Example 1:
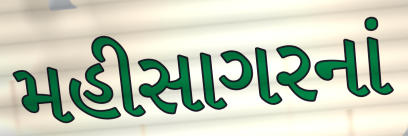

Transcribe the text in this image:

મહીસાગરનાં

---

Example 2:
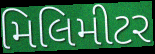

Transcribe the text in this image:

મિલિમીટર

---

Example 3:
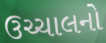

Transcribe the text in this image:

ઉચ્ચાલનો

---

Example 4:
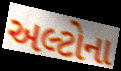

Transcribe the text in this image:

અલ્ટોના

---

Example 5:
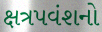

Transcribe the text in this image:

ક્ષત્રપવંશનો